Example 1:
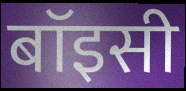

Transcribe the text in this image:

बॉइसी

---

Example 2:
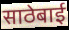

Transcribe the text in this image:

साठेबाई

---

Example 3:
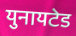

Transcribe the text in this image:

युनायटेड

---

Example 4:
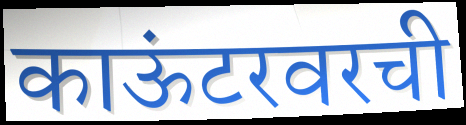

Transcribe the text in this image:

काऊंटरवरची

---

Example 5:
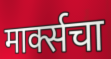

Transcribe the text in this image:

मार्क्सचा